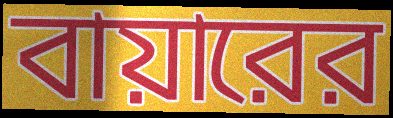
বায়ারের